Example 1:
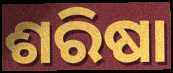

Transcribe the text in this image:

ଶରିଷା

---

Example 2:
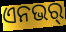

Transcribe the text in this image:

ଏନଭର୍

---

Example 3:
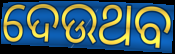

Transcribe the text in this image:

ଦେଉଥବ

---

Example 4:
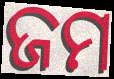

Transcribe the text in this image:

ଜମ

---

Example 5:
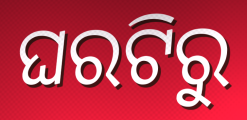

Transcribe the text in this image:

ଘରଟିରୁ